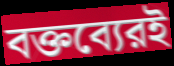
বক্তব্যেরই